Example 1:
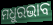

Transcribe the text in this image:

ମଧୁରଭାବ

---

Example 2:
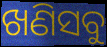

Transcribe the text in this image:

ଖଣିସବୁ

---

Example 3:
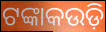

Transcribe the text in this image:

ଟଙ୍କାକଉଡ଼ି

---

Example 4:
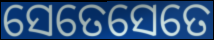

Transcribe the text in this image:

ସେତେସେତେ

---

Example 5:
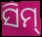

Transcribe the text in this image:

ସିମ୍